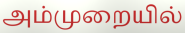
அம்முறையில்